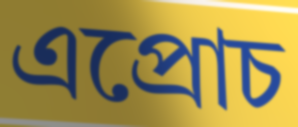
এপ্রোচ